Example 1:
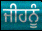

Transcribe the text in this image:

ਜੀਹਨੂੰ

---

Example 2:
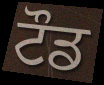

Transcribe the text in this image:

ਟੌਡ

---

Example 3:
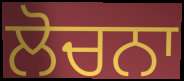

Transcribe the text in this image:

ਲੋਚਨਾ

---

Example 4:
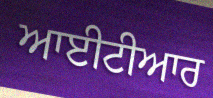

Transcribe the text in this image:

ਆਈਟੀਆਰ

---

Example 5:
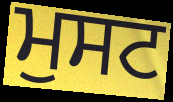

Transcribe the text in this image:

ਮੁਸਟ